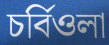
চর্বিওলা